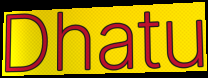
Dhatu